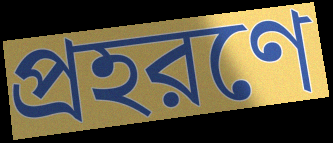
প্রহরণে